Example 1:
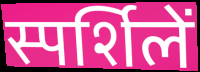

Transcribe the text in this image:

स्पर्शिलें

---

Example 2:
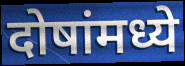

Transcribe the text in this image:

दोषांमध्ये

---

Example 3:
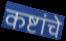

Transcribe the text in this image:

कष्टांचे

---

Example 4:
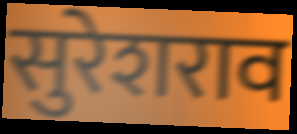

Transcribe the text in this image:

सुरेशराव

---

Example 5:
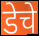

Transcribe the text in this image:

डेचे